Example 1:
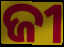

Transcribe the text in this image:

ଜୀ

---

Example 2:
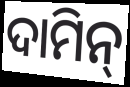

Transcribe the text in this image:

ଦାମିନ୍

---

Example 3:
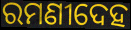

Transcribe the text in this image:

ରମଣୀଦେହ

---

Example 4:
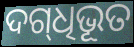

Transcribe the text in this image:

ଦଗ୍‍ଧିଭୂତ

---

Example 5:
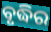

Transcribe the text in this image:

ବୃଦ୍ଧିର